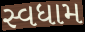
સ્વધામ